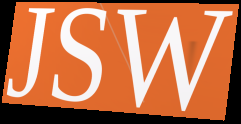
JSW